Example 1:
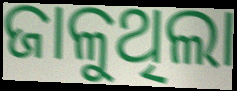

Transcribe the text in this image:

ଜାଳୁଥିଲା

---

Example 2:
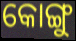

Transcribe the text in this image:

କୋଙ୍ଗୁ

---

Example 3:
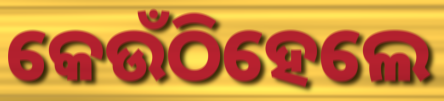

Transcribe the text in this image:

କେଉଁଠିହେଲେ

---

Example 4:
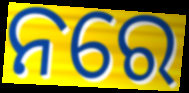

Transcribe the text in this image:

ନରେ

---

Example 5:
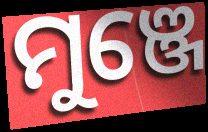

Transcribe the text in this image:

ମୁଞ୍ଜେ